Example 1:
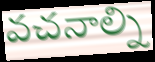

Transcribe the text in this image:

వచనాల్ని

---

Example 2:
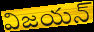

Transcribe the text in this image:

విజయన్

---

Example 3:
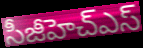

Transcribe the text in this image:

సీజీహెచ్ఎస్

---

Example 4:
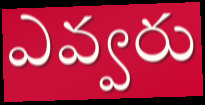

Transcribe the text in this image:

ఎవ్వరు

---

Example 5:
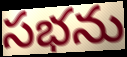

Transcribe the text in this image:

సభను